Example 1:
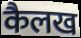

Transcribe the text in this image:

कैलख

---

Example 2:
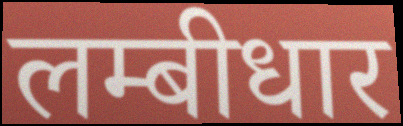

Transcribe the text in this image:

लम्बीधार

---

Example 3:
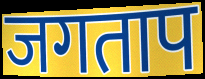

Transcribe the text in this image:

जगताप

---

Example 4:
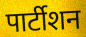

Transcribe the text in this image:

पार्टीशन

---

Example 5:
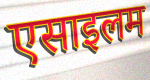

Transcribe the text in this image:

एसाइलम